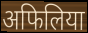
अफिलिया